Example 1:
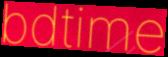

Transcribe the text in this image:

bdtime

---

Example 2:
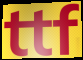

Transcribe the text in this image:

ttf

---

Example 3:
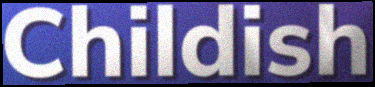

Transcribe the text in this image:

Childish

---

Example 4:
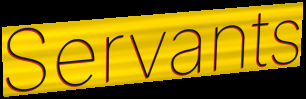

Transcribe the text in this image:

Servants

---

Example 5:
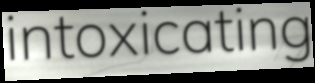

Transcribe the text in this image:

intoxicating